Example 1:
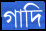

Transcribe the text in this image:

গাদি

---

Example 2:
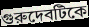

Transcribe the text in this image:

গুরুদেবটিকে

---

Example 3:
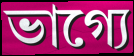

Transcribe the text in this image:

ভাগ্যে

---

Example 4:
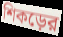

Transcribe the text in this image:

শিকড়ের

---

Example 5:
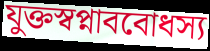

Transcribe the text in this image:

যুক্তস্বপ্নাববোধস্য